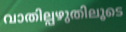
വാതില്പഴുതിലൂടെ